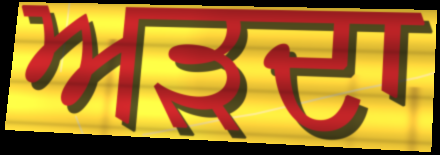
ਅੜਦਾ